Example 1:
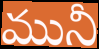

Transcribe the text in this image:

మునీ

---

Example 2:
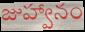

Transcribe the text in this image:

జుహ్వానం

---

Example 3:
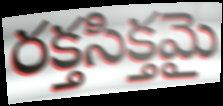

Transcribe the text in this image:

రక్తసిక్తమై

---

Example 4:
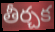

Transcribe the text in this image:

తీర్చక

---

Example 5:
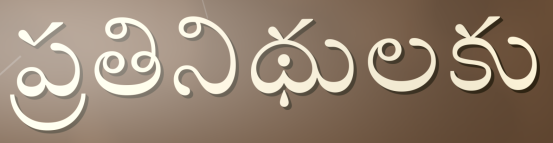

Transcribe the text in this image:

ప్రతినిథులకు